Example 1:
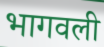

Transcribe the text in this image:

भागवली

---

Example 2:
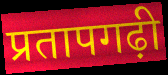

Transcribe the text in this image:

प्रतापगढ़ी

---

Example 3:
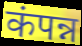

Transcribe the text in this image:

कंपन्न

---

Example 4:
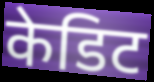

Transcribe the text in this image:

केडिट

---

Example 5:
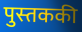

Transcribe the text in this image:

पुस्तककी